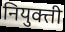
नियुक्ती